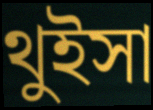
থুইসা